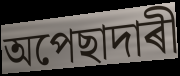
অপেছাদাৰী